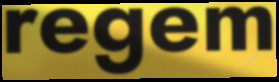
regem